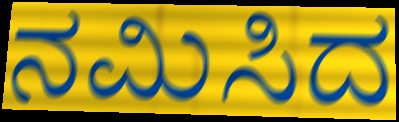
ನಮಿಸಿದ